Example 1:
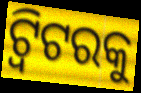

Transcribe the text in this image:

ଟ୍ୱିଟରକୁ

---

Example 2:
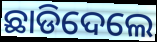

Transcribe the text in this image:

ଛାଡିଦେଲେ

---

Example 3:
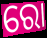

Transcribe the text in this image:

ରୋ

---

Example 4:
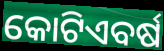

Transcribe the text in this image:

କୋଟିଏବର୍ଷ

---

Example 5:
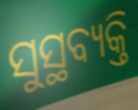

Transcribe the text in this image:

ସୁସ୍ଥବ୍ୟକ୍ତି